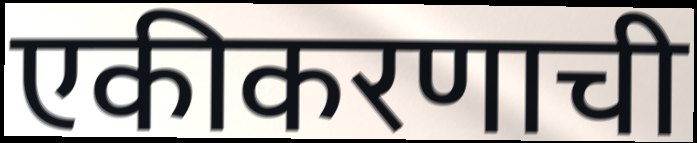
एकीकरणाची